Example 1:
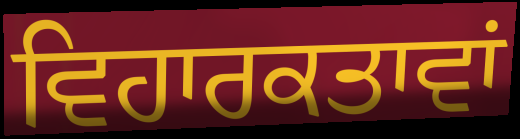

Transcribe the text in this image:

ਵਿਹਾਰਕਤਾਵਾਂ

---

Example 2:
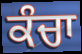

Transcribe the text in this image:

ਕੰਚਾ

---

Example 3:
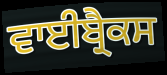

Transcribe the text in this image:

ਵਾਈਬ੍ਰੈਕਸ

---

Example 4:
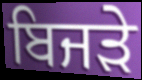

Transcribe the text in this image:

ਬਿਜੜੇ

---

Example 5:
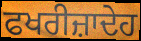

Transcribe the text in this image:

ਫਖਰੀਜ਼ਾਦੇਹ